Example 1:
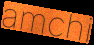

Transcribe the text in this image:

amchi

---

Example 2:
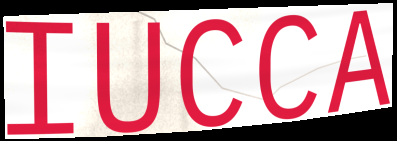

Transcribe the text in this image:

IUCCA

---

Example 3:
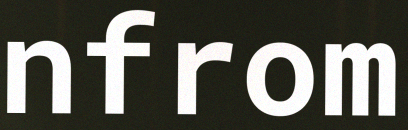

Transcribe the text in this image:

nfrom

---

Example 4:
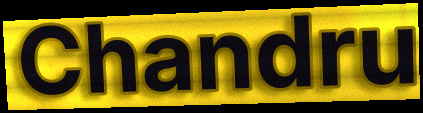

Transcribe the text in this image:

Chandru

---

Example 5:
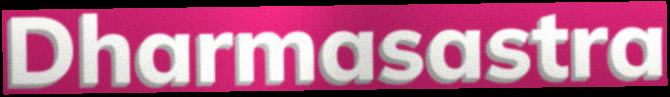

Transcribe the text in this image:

Dharmasastra